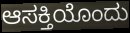
ಆಸಕ್ತಿಯೊಂದು